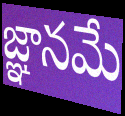
జ్ఞానమే